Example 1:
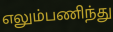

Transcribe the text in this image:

எலும்பணிந்து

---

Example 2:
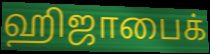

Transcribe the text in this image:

ஹிஜாபைக்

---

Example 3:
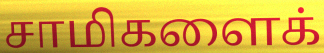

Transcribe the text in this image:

சாமிகளைக்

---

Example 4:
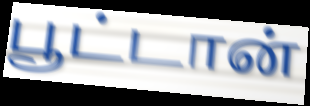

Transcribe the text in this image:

பூட்டான்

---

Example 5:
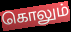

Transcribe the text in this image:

கொலும்